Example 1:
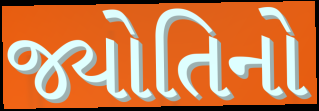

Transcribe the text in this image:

જ્યોતિનો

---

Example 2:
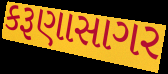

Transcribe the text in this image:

કરૂણાસાગર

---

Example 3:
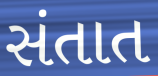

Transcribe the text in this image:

સંતાત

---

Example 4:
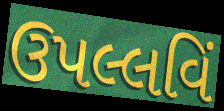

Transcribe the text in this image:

ઉપલ્લવિં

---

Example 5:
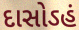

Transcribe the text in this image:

દાસોઽહં